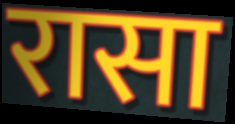
रासा